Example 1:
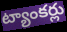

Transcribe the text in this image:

ట్యాంకర్లు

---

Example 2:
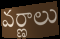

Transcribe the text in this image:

వర్ణాలు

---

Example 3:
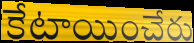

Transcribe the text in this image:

కేటాయించేరు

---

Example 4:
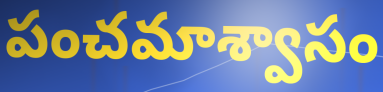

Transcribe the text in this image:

పంచమాశ్వాసం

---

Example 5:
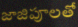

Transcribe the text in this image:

జాజిపూలతో